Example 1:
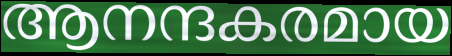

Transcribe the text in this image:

ആനന്ദകരമായ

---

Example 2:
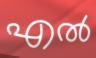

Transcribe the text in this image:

എൽ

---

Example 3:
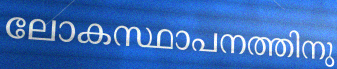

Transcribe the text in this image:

ലോകസ്ഥാപനത്തിനു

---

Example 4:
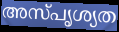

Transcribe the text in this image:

അസ്പൃശ്യത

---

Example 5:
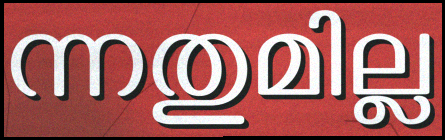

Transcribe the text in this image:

ന്നതുമില്ല